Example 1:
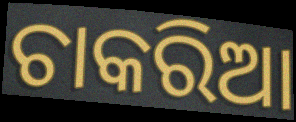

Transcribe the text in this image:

ଚାକରିଆ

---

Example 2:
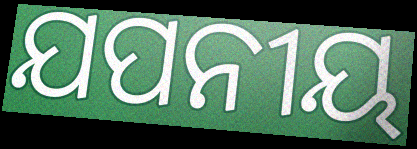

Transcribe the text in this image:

ଯପନୀୟ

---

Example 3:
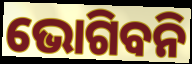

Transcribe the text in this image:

ଭୋଗିବନି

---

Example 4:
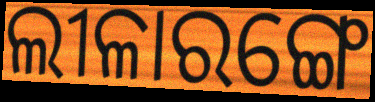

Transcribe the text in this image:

ଲୀଳାରଙ୍ଗେ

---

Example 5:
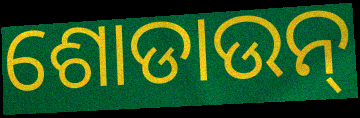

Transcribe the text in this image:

ଶୋଡାଉନ୍